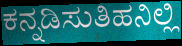
ಕನ್ನಡಿಸುತಿಹನಿಲ್ಲಿ